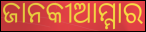
ଜାନକୀଆମ୍ମାର